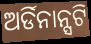
ଅର୍ଡିନାନ୍ସଟି